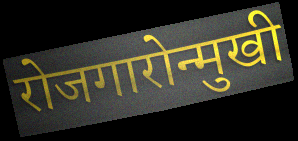
रोजगारोन्मुखी